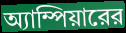
অ্যাম্পিয়ারের